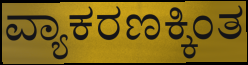
ವ್ಯಾಕರಣಕ್ಕಿಂತ